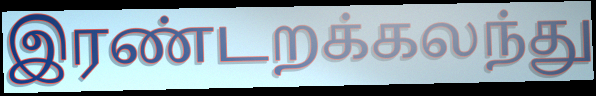
இரண்டறக்கலந்து